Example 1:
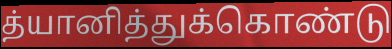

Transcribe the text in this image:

த்யானித்துக்கொண்டு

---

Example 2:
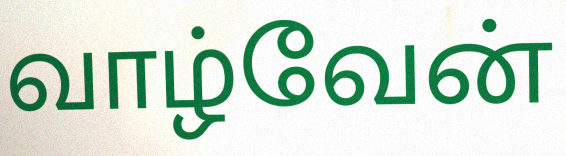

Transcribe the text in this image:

வாழ்வேன்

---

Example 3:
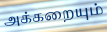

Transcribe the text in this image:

அக்கறையும்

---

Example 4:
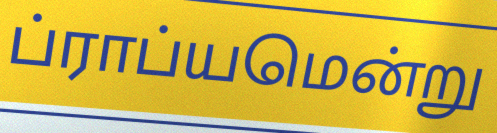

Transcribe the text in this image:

ப்ராப்யமென்று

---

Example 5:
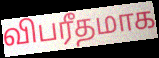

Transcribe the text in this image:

விபரீதமாக